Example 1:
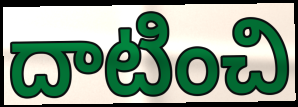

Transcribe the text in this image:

దాటించి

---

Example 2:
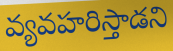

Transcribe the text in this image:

వ్యవహరిస్తాడని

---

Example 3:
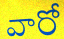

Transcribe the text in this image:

వారో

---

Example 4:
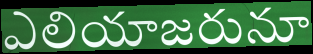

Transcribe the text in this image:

ఎలియాజరునూ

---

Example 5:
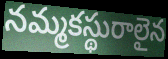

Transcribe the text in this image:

నమ్మకస్థురాలైన